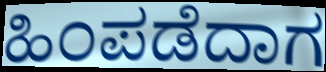
ಹಿಂಪಡೆದಾಗ